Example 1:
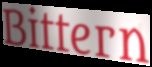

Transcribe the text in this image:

Bittern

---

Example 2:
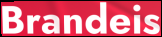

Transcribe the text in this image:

Brandeis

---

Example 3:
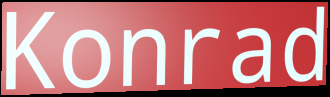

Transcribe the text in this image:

Konrad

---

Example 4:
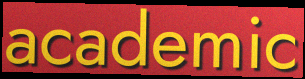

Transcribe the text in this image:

academic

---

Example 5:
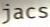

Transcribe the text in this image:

jacs